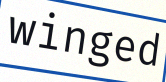
winged